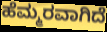
ಹೆಮ್ಮರವಾಗಿದೆ